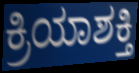
ಕ್ರಿಯಾಶಕ್ತಿ